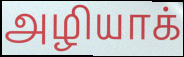
அழியாக்